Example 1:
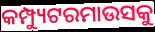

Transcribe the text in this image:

କମ୍ପ୍ୟୁଟରମାଉସକୁ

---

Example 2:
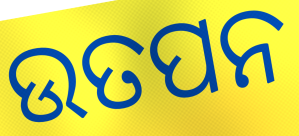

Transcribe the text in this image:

ଉତପନ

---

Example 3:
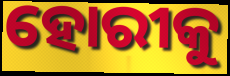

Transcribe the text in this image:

ହୋରୀକୁ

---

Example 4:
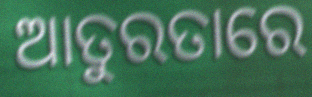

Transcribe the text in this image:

ଆତୁରତାରେ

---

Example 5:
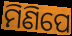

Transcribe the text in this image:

ମିଣିପେ